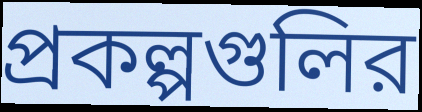
প্রকল্পগুলির